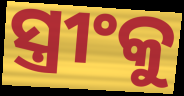
ସ୍ତ୍ରୀଂକୁ